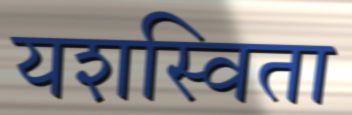
यशस्विता